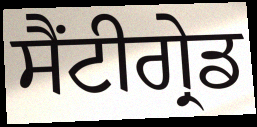
ਸੈਂਟੀਗ੍ਰੇਡ